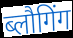
ब्लौगिंग